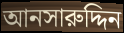
আনসারুদ্দিন